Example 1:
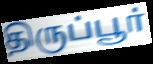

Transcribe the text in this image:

திருப்பூர்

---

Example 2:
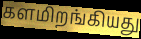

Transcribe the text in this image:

களமிறங்கியது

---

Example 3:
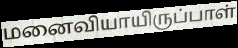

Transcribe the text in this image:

மனைவியாயிருப்பாள்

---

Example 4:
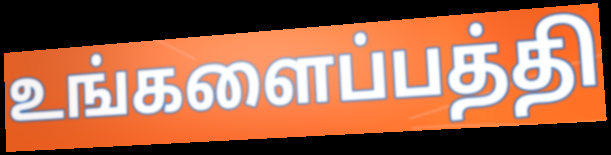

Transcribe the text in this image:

உங்களைப்பத்தி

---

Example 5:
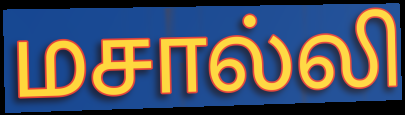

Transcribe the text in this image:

மசால்லி